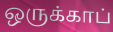
ஒருக்காப்